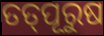
ତତ୍‌ପୂରୁଷ